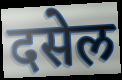
दसेल